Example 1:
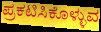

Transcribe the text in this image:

ಪ್ರಕಟಿಸಿಕೊಳ್ಳುವ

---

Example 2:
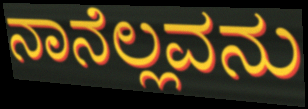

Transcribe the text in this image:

ನಾನೆಲ್ಲವನು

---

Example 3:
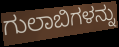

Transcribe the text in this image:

ಗುಲಾಬಿಗಳನ್ನು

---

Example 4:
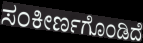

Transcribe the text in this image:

ಸಂಕೀರ್ಣಗೊಂಡಿದೆ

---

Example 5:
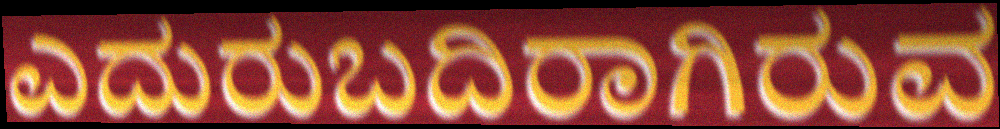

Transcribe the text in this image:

ಎದುರುಬದಿರಾಗಿರುವ